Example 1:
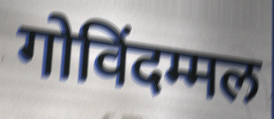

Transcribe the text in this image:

गोविंदम्मल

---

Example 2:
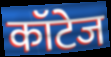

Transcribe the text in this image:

कॉटेज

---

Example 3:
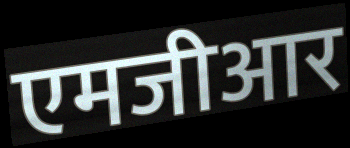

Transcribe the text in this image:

एमजीआर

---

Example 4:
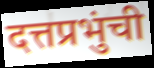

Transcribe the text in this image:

दत्तप्रभुंची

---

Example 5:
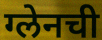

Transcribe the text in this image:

ग्लेनची